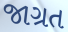
જાગ્રત